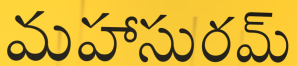
మహాసురమ్